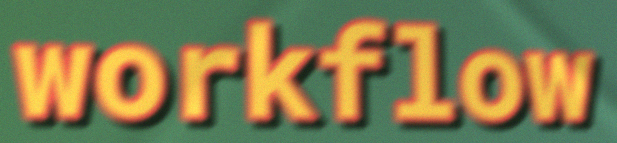
workflow